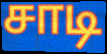
சாடி